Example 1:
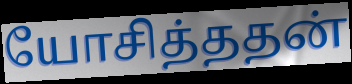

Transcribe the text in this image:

யோசித்ததன்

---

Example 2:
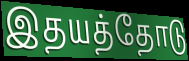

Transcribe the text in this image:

இதயத்தோடு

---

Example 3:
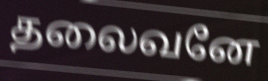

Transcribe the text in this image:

தலைவனே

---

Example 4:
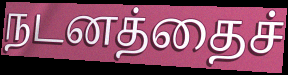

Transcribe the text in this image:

நடனத்தைச்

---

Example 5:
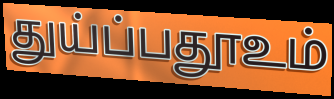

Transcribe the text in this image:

துய்ப்பதூஉம்